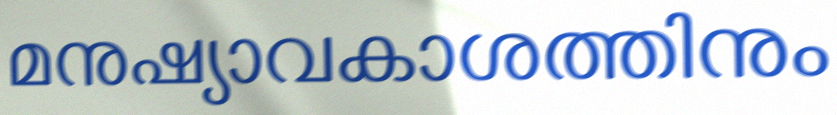
മനുഷ്യാവകാശത്തിനും